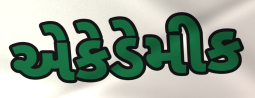
એકેડેમીક